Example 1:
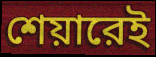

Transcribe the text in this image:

শেয়ারেই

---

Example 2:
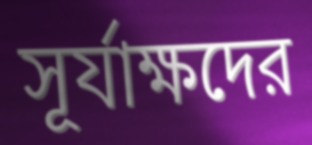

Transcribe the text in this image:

সূর্যাক্ষদের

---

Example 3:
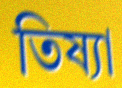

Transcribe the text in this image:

তিষ্যা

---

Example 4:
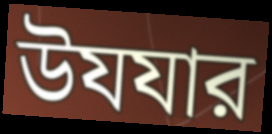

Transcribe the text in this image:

উযযার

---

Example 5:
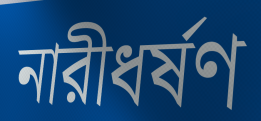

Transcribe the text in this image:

নারীধর্ষণ